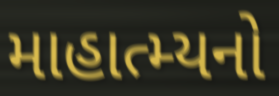
માહાત્મ્યનો